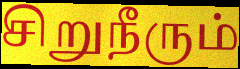
சிறுநீரும்